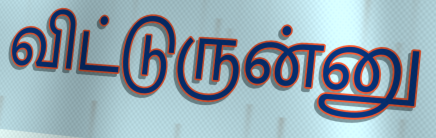
விட்டுருன்னு